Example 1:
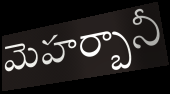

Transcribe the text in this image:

మెహర్బానీ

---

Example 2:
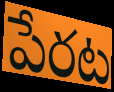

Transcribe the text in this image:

పేరట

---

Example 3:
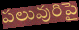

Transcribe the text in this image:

పలువురిపై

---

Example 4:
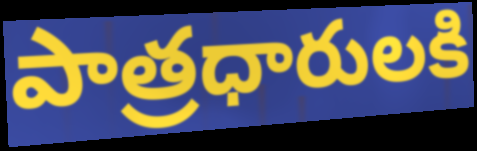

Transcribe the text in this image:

పాత్రధారులకి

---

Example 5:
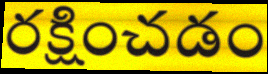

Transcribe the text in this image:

రక్షించడం